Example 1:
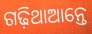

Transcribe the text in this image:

ଗଢ଼ିଥାଆନ୍ତେ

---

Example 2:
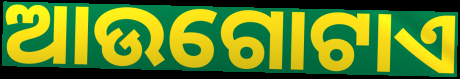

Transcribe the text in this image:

ଆଉଗୋଟାଏ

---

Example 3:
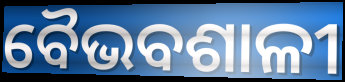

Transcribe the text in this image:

ବୈଭବଶାଳୀ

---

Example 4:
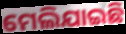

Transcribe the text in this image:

ମେଲିଯାଇଛି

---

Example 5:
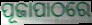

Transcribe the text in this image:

ପୂଜାପାଠରେ